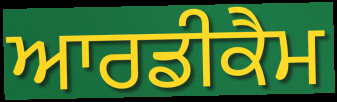
ਆਰਡੀਕੈਮ